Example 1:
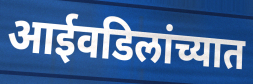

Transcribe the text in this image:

आईवडिलांच्यात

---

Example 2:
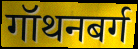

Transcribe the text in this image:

गॉथनबर्ग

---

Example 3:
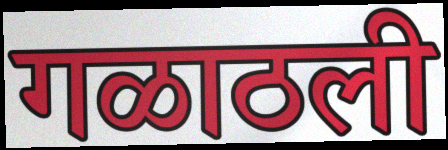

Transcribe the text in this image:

गळाठली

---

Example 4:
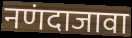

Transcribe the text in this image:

नणंदाजावा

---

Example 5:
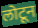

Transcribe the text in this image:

लोटून